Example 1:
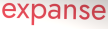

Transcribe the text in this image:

expanse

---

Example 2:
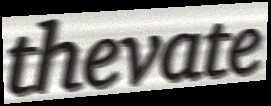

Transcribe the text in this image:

thevate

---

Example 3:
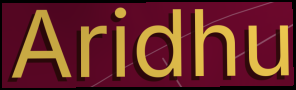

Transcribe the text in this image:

Aridhu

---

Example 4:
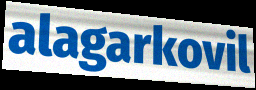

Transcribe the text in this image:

alagarkovil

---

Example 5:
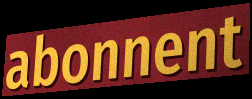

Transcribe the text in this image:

abonnent